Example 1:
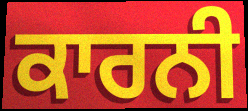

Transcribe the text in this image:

ਕਾਰਨੀ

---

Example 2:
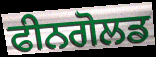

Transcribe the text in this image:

ਫੀਨਗੋਲਡ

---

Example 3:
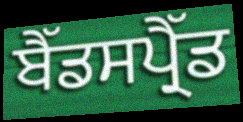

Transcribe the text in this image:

ਬੈੱਡਸਪ੍ਰੈੱਡ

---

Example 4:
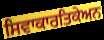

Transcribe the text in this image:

ਸਿਵਾਕਾਰਤਿਕੇਅਨ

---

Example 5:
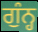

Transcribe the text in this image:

ਗੁੰਨ੍ਹ